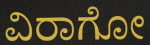
ವಿರಾಗೋ